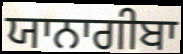
ਯਾਨਾਗੀਬਾ